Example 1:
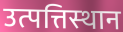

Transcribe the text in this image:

उत्पत्तिस्थान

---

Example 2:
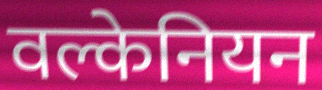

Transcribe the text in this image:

वल्केनियन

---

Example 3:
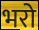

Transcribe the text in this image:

भरो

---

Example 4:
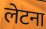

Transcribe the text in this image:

लेटना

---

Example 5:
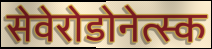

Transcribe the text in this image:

सेवेरोडोनेत्स्क